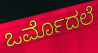
ಒರ್ಮೊದಲೆ